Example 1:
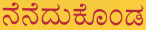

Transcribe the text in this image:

ನೆನೆದುಕೊಂಡ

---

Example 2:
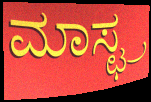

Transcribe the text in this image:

ಮಾಸ್ಟ್ರ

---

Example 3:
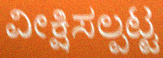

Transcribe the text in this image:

ವೀಕ್ಷಿಸಲ್ಪಟ್ಟ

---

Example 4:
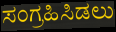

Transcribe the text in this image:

ಸಂಗ್ರಹಿಸಿಡಲು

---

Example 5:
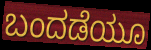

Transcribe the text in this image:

ಬಂದಡೆಯೂ